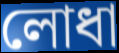
লোধা